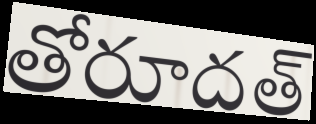
తోరూదత్